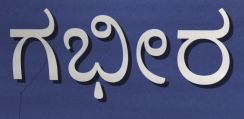
ಗಭೀರ